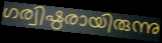
ഗര്വിഷ്ഠരായിരുന്നു